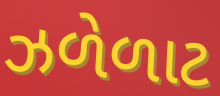
ઝળેળાટ